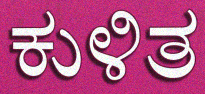
ಕುಳಿತ